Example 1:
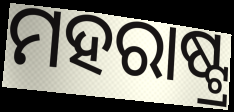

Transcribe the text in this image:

ମହରାଷ୍ଟ୍ର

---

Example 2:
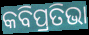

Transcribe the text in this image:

କବିପ୍ରତିଭା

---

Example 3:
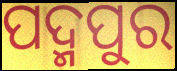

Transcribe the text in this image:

ପଦ୍ମପୁର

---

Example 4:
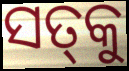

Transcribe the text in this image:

ସତ୍‌କୁ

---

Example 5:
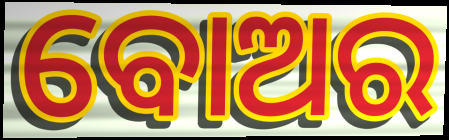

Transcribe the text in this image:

ବୋଅର